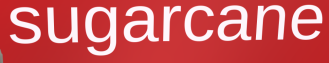
sugarcane